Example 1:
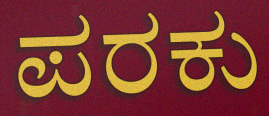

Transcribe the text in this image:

ಪರಕು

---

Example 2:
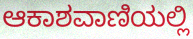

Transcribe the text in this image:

ಆಕಾಶವಾಣಿಯಲ್ಲಿ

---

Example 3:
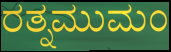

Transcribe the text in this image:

ರತ್ನಮುಮಂ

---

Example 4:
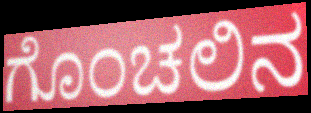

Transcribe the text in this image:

ಗೊಂಚಲಿನ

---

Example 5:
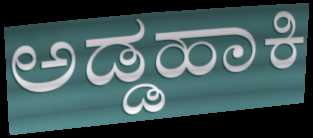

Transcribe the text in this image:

ಅಡ್ಡಹಾಕಿ